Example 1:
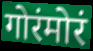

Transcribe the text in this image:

गोरंमोरं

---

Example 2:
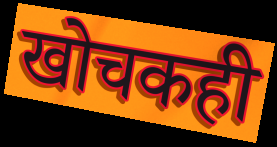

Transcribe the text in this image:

खोचकही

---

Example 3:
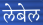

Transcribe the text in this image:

लेबेल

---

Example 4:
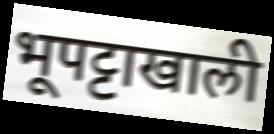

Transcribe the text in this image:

भूपट्टाखाली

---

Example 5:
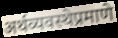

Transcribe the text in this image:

अर्थव्यवस्थेप्रमाणे